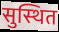
सुस्थित